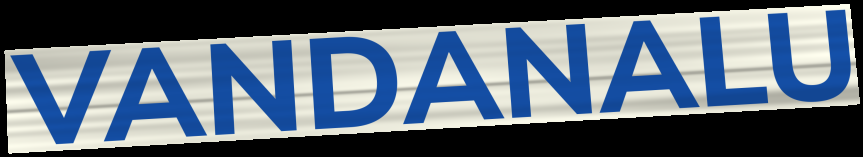
VANDANALU